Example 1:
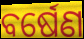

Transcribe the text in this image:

ବର୍ଷେଣ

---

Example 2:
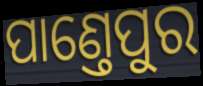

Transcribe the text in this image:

ପାଣ୍ତେପୁର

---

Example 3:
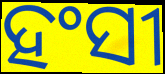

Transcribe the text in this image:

ହଂସୀ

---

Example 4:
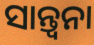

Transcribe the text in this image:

ସାନ୍ତ୍ବନା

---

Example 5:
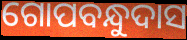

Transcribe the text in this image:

ଗୋପବନ୍ଧୁଦାସ